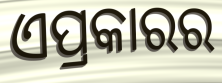
ଏପ୍ରକାରର